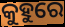
କୁହୁରେ